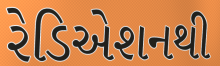
રેડિએશનથી